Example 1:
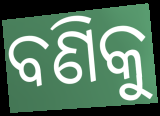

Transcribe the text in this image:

ବଣିକୁ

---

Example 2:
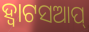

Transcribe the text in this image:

ହ୍ବାଟସଆପ୍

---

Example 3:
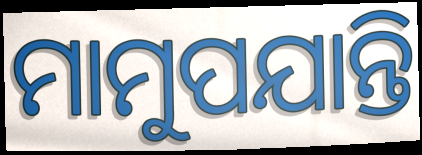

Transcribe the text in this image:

ମାମୁପଯାନ୍ତି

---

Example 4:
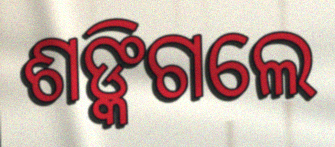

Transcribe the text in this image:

ଶଙ୍କିଗଲେ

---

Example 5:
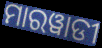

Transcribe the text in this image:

ମାରୱାଡୀ